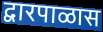
द्वारपाळास